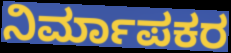
ನಿರ್ಮಾಪಕರ